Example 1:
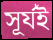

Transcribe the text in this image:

সূৰ্যই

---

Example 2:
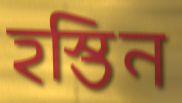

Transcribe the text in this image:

হস্তিন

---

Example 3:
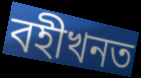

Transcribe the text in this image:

বহীখনত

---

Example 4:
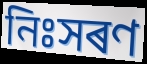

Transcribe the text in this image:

নিঃসৰণ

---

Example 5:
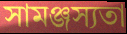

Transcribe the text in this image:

সামঞ্জস্যতা